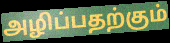
அழிப்பதற்கும்